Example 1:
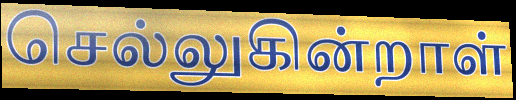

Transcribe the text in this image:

செல்லுகின்றாள்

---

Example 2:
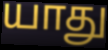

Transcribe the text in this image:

யாது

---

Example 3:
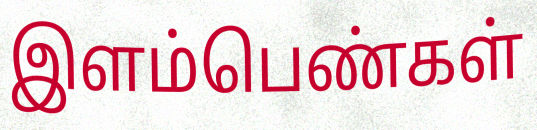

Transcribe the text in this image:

இளம்பெண்கள்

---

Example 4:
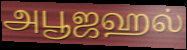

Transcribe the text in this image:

அபூஜஹல்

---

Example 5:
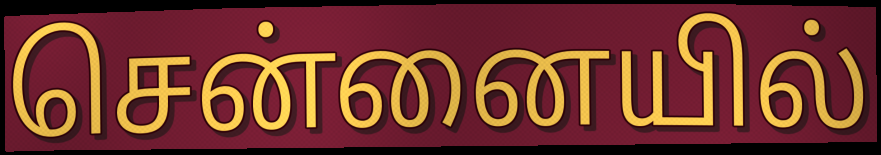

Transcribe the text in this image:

சென்னையில்